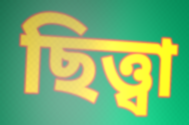
ছিত্ত্বা